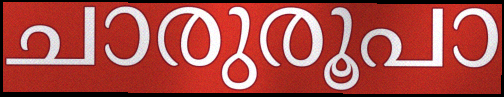
ചാരുരൂപാ